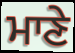
ਮਾਣੇ